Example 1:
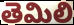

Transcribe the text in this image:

తెమిలి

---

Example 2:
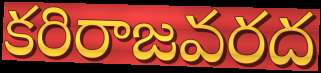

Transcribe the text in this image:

కరిరాజవరద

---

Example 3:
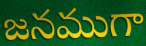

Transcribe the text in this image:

జనముగా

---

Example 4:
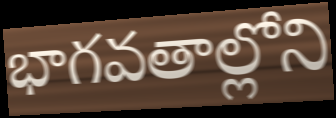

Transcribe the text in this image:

భాగవతాల్లోని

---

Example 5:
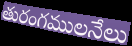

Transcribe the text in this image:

తురంగములనేలు